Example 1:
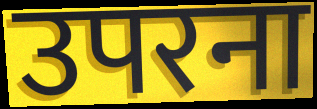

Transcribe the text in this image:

उपरना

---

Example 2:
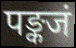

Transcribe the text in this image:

पङ्कजं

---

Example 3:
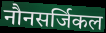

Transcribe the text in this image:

नौनसर्जिकल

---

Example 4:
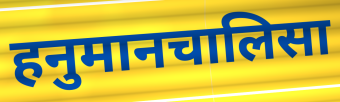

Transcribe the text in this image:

हनुमानचालिसा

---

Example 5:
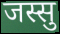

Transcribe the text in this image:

जस्सु